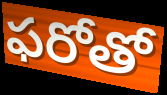
ఫరోతో